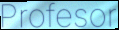
Profesor